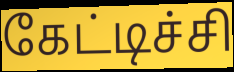
கேட்டிச்சி